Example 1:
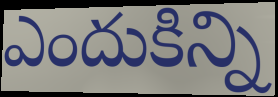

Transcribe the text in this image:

ఎందుకిన్ని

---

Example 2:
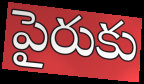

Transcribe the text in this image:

పైరుకు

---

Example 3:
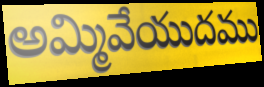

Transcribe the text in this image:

అమ్మివేయుదము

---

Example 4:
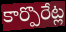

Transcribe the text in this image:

కార్పొరేట్ల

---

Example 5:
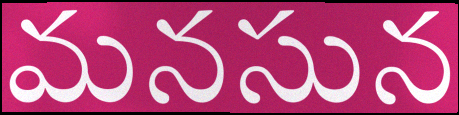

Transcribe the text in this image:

మనసున